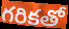
గరికతో